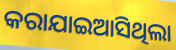
କରାଯାଇଆସିଥିଲା